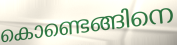
കൊണ്ടെങ്ങിനെ